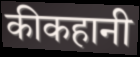
कीकहानी